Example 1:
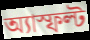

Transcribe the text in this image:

অ্যাস্ফল্ট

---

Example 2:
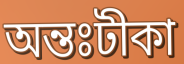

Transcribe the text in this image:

অন্তঃটীকা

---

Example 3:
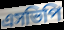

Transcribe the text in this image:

এসভিপি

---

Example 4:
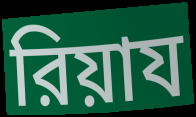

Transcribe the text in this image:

রিয়ায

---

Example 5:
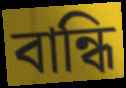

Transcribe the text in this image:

বান্ধি